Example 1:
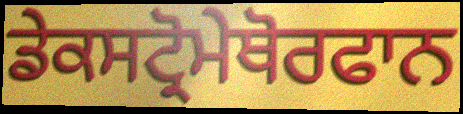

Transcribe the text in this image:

ਡੇਕਸਟ੍ਰੋਮੇਥੋਰਫਾਨ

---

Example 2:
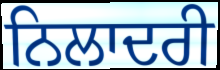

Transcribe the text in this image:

ਨਿਲਾਦਰੀ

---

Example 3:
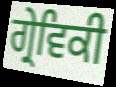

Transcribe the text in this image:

ਗ੍ਰੇਵਿਕੀ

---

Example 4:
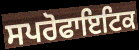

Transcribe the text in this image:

ਸਪਰੋਫਾਇਟਿਕ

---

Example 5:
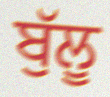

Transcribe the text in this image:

ਬੁੱਲੂ